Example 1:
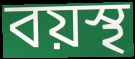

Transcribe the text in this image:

বয়স্থ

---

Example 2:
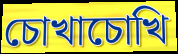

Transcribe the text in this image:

চোখাচোখি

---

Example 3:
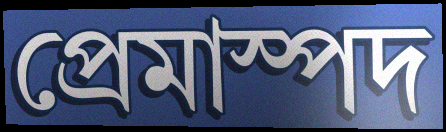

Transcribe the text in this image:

প্রেমাস্পদ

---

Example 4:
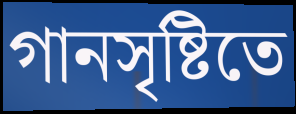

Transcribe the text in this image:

গানসৃষ্টিতে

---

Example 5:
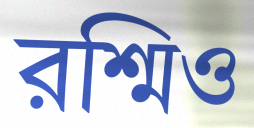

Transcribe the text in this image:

রশ্মিও